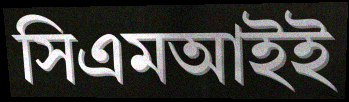
সিএমআইই